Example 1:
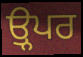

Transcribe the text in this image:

ਉ੍ਨਪਰ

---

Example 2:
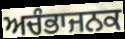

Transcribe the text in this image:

ਅਚੰਭਾਜਨਕ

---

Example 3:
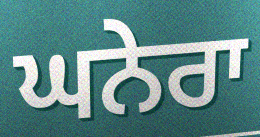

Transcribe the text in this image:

ਘਨੇਰਾ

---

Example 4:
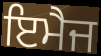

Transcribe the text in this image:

ਇਮੈਜ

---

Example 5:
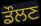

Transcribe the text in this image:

ਡੌਲਣ